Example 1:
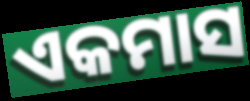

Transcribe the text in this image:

ଏକମାସ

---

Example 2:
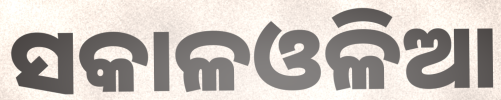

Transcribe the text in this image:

ସକାଳଓଳିଆ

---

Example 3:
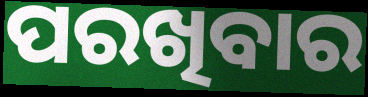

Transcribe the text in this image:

ପରଖିବାର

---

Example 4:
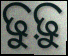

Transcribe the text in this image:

ଢୁଢ଼ୁ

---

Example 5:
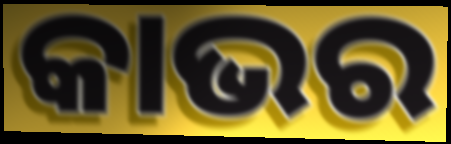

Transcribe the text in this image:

କାଭର